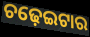
ଚଢ଼େଇଟାର